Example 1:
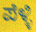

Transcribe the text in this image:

ಪೆಳ್ಳಿ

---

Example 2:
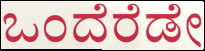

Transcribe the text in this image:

ಒಂದೆರೆಡೇ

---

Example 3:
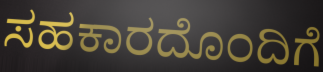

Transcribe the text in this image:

ಸಹಕಾರದೊಂದಿಗೆ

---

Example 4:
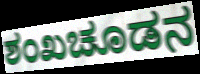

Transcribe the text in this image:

ಶಂಖಚೂಡನ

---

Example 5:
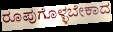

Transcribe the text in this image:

ರೂಪುಗೊಳ್ಳಬೇಕಾದ